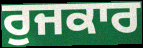
ਰੁਜਕਾਰ